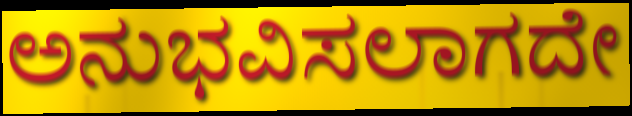
ಅನುಭವಿಸಲಾಗದೇ